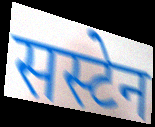
सस्टेन